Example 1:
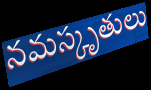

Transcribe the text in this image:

నమస్కృతులు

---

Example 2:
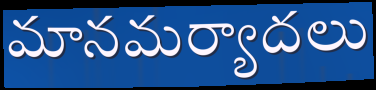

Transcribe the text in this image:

మానమర్యాదలు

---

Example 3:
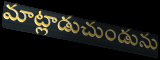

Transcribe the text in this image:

మాట్లాడుచుండును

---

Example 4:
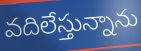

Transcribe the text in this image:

వదిలేస్తున్నాను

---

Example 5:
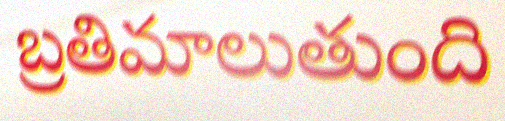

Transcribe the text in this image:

బ్రతిమాలుతుంది